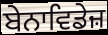
ਬੇਨਾਵਿਡੇਜ਼